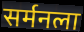
सर्मनला